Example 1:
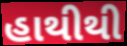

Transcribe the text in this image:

હાથીથી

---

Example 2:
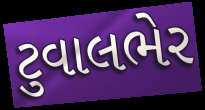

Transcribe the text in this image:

ટુવાલભેર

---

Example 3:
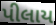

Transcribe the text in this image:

પીલાય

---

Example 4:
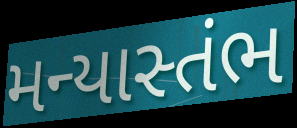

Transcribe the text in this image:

મન્યાસ્તંભ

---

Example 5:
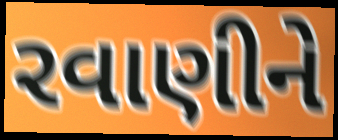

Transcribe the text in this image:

રવાણીને